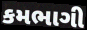
કમભાગી